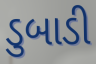
ડુબાડી